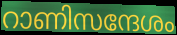
റാണിസന്ദേശം